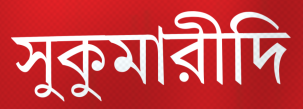
সুকুমারীদি